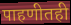
पाहणीतही